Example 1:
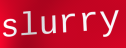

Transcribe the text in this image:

slurry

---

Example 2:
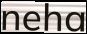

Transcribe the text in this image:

neha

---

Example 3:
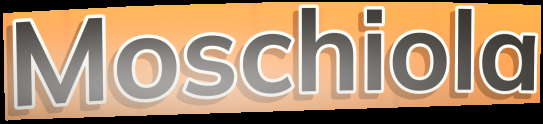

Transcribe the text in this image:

Moschiola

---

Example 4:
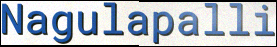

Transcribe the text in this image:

Nagulapalli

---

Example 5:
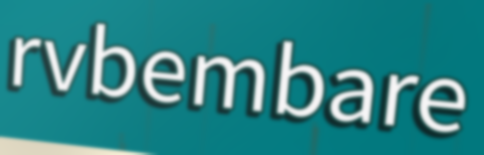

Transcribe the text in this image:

rvbembare